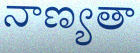
నాణ్యతా